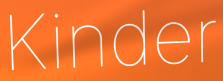
Kinder